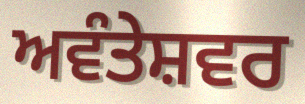
ਅਵੰਤੇਸ਼ਵਰ